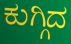
ಕುಗ್ಗಿದ